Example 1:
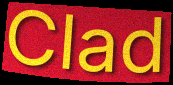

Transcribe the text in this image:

Clad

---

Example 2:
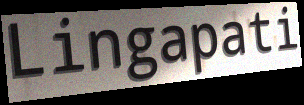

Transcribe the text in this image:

Lingapati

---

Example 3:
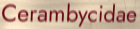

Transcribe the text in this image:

Cerambycidae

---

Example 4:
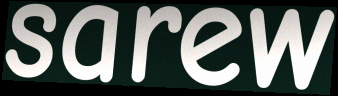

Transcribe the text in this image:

sarew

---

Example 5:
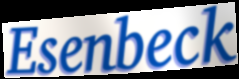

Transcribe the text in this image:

Esenbeck